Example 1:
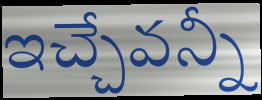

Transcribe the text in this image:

ఇచ్చేవన్నీ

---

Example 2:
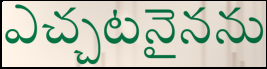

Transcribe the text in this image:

ఎచ్చటనైనను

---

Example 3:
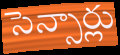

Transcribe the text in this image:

సెన్సార్లు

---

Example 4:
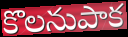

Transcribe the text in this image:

కొలనుపాక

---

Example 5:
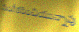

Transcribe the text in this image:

నంగీకరించియున్నావు